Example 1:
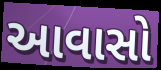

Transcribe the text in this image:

આવાસો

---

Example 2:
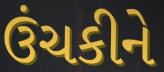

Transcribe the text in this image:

ઉંચકીને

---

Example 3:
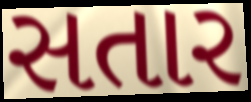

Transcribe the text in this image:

સતાર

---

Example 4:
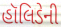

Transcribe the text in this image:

હૉલિડેની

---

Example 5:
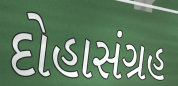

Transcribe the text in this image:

દોહાસંગ્રહ